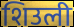
शिउली